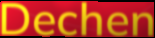
Dechen